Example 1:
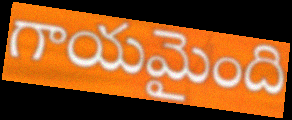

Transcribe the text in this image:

గాయమైంది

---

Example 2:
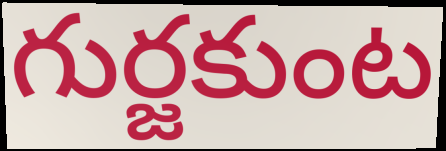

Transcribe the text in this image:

గుర్జకుంట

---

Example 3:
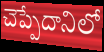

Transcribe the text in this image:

చెప్పేదానిలో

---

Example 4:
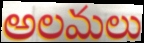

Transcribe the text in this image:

అలమలు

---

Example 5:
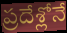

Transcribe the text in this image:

ప్రదేశ్లోనే